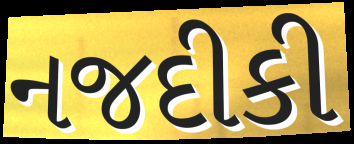
નજદીકી